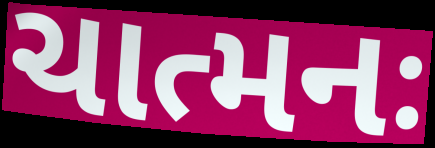
ચાત્મનઃ